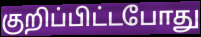
குறிப்பிட்டபோது